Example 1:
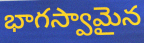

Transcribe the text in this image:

భాగస్వామైన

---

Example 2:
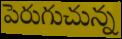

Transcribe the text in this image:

పెరుగుచున్న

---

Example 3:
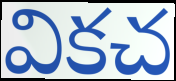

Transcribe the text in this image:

వికచ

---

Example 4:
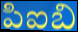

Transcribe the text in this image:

పిఐబి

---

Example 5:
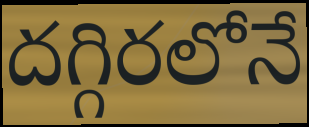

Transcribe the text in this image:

దగ్గిరలోనే